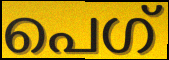
പെഗ്